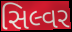
સિલ્વર